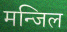
मन्जिल